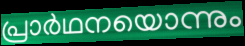
പ്രാർഥനയൊന്നും